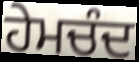
ਹੇਮਚੰਦ